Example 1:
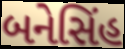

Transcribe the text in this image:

બનેસિંહ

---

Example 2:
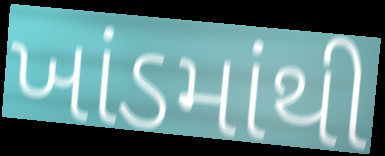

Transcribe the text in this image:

ખાંડમાંથી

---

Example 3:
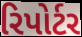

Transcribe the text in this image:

રિપોર્ટર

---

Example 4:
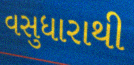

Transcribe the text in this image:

વસુધારાથી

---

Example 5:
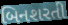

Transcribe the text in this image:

બિનશરતી